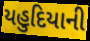
યહુદિયાની